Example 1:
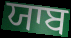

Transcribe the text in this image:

ਯਾਬ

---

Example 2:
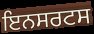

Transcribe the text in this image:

ਇਨਸਰਟਸ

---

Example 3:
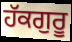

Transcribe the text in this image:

ਹੱਕਗੁਰੂ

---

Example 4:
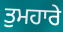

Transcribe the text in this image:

ਤੁਮਹਾਰੇ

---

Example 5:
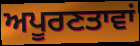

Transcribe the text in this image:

ਅਪੂਰਣਤਾਵਾਂ